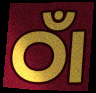
ଠାଁ